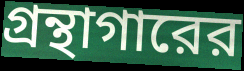
গ্রন্থাগারের